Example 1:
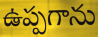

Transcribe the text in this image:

ఉప్పగాను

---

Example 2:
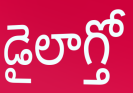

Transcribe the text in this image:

డైలాగ్తో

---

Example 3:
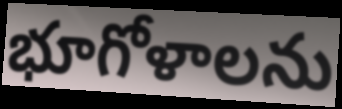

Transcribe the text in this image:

భూగోళాలను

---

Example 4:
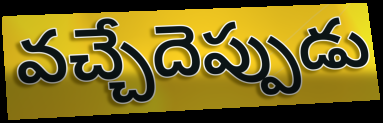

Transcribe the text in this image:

వచ్చేదెప్పుడు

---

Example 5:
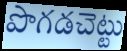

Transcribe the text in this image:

పొగడచెట్టు